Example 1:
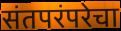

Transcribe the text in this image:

संतपरंपरेचा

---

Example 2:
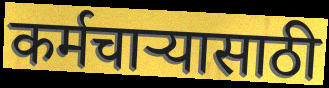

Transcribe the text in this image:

कर्मचाऱ्यासाठी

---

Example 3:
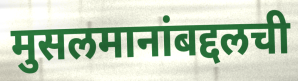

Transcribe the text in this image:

मुसलमानांबद्दलची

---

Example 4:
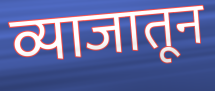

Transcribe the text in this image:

व्याजातून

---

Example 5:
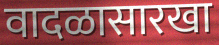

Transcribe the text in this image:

वादळासारखा